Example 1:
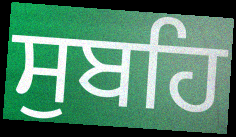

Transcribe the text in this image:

ਸੁਬਹਿ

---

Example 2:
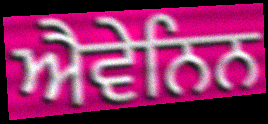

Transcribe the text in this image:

ਐਵੇਨਿਨ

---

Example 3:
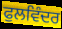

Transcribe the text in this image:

ਫੁਲਵਿੰਦਰ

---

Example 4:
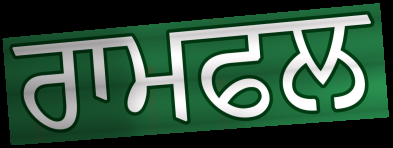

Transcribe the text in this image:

ਰਾਮਫਲ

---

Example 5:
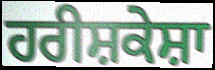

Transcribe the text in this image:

ਹਰੀਸ਼ਕੇਸ਼ਾ